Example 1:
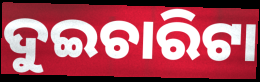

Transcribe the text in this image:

ଦୁଇଚାରିଟା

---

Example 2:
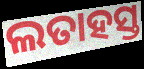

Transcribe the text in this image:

ଲତାହସ୍ତ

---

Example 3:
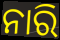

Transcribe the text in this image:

ନାରି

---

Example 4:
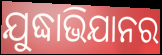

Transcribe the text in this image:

ଯୁଦ୍ଧାଭିଯାନର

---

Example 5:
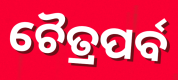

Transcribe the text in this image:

ଚୈତ୍ରପର୍ବ